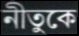
নীতুকে